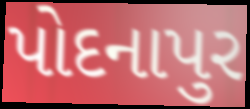
પોદનાપુર